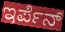
ಇರ್ಪೆನ್